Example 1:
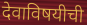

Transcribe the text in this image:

देवाविषयीची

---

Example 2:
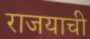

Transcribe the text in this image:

राजयाची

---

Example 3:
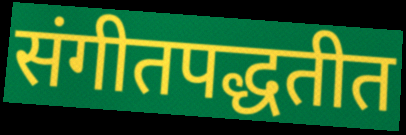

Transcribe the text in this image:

संगीतपद्धतीत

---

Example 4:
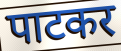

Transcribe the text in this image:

पाटकर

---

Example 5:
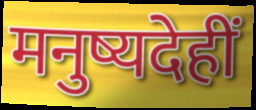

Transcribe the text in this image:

मनुष्यदेहीं